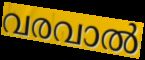
വരവാൽ